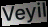
Veyil